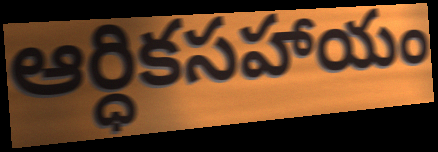
ఆర్ధికసహాయం